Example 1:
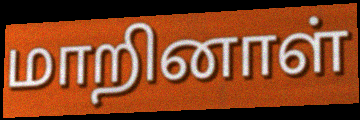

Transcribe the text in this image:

மாறினாள்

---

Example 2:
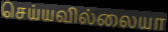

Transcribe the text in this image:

செய்யவில்லையா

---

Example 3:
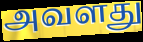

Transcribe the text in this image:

அவளது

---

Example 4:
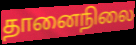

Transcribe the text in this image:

தானைநிலை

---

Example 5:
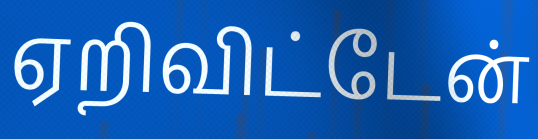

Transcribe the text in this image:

ஏறிவிட்டேன்